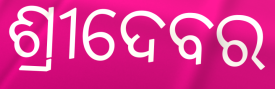
ଶ୍ରୀଦେବର